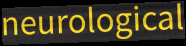
neurological